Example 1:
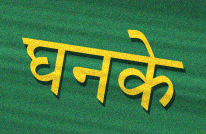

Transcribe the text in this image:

घनके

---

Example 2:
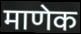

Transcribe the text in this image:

माणेक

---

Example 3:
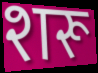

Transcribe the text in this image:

शरू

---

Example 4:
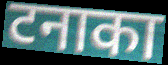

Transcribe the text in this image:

टनाका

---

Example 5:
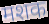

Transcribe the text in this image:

मशक